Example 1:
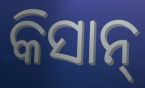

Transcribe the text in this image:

କିସାନ୍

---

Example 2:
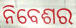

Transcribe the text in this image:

ନିବେଶର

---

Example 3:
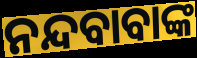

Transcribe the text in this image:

ନନ୍ଦବାବାଙ୍କ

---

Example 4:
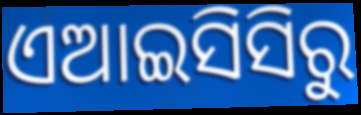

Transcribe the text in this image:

ଏଆଇସିସିରୁ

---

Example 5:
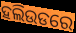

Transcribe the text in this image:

ହଲିଉଡରେ